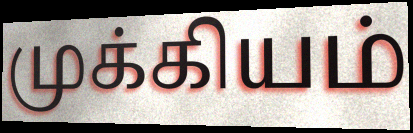
முக்கியம்